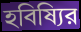
হবিষ্যির